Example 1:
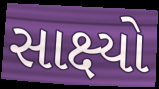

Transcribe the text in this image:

સાક્ષ્યો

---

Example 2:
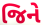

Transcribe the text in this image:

જિને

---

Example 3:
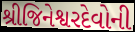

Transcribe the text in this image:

શ્રીજિનેશ્વરદેવોની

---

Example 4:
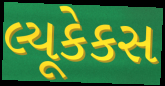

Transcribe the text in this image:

લ્યૂકેકસ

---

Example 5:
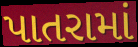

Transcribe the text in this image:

પાતરામાં